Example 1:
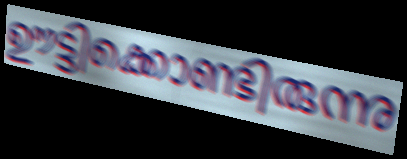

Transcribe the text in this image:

ഊട്ടിക്കൊണ്ടിരുന്നു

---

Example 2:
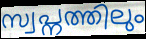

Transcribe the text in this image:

സ്വപ്നത്തിലും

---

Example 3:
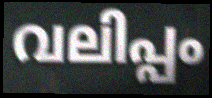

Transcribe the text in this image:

വലിപ്പം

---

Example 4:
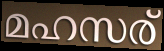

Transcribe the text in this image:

മഹസര്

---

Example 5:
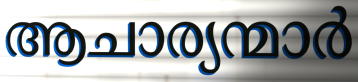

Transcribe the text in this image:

ആചാര്യന്മാർ